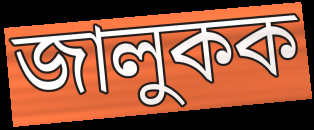
জালুকক